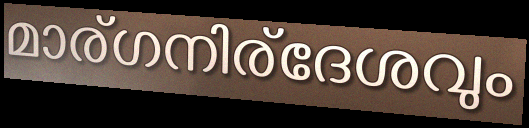
മാര്ഗനിര്ദേശവും